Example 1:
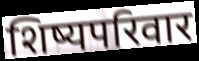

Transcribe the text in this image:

शिष्यपरिवार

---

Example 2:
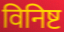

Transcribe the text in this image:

विनिष्ट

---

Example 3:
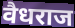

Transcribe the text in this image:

वैधराज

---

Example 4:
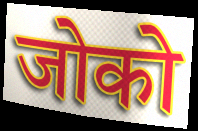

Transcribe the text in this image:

जोको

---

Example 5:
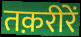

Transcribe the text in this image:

तक़रीरें